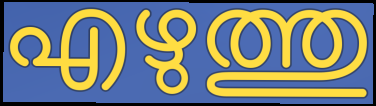
എഴുത്തു